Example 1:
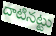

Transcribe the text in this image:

దాటినట్టు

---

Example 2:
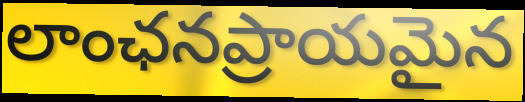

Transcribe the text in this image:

లాంఛనప్రాయమైన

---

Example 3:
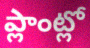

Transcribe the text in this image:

ప్లాంట్లో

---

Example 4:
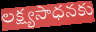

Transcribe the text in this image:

లక్ష్యసాధనకు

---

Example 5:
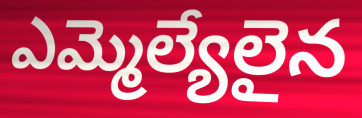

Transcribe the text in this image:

ఎమ్మెల్యేలైన